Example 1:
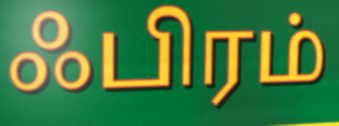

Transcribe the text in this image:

ஃபிரம்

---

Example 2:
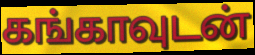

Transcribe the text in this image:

கங்காவுடன்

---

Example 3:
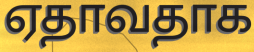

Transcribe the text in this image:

ஏதாவதாக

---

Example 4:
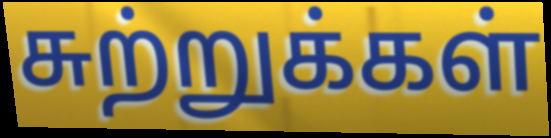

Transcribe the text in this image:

சுற்றுக்கள்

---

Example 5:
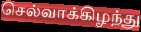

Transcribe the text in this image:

செல்வாக்கிழந்து